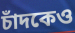
চাঁদকেও